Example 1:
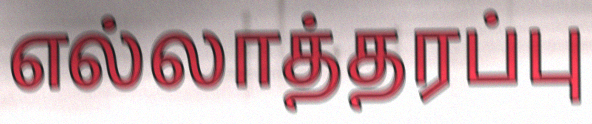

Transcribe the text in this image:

எல்லாத்தரப்பு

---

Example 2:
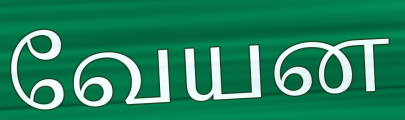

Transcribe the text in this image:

வேயன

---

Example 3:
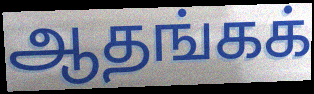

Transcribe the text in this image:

ஆதங்கக்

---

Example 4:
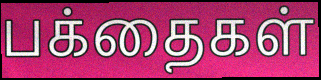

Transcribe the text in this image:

பக்தைகள்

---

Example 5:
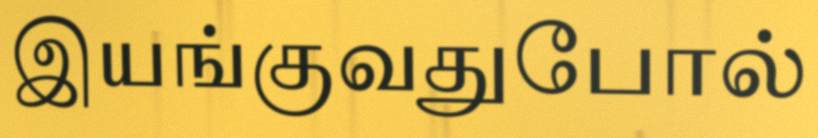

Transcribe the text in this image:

இயங்குவதுபோல்